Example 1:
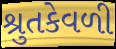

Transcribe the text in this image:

શ્રુતકેવળી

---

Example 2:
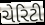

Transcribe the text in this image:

ચેરિટી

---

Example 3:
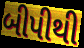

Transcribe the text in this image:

બીપીથી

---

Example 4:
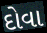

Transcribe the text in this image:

દોવા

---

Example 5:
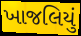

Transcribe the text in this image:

ખાજલિયું